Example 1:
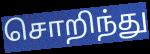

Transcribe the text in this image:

சொறிந்து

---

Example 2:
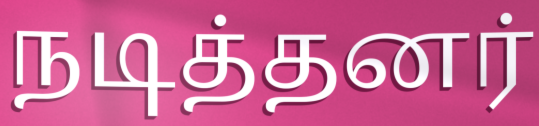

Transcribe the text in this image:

நடித்தனர்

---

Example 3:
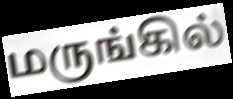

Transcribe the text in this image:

மருங்கில்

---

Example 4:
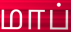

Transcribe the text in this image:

மாப்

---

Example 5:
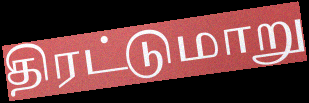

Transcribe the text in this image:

திரட்டுமாறு